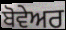
ਬੋਵੇਅਰ